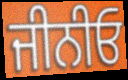
ਜੀਨੀਓ